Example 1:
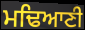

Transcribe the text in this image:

ਮਢਿਆਣੀ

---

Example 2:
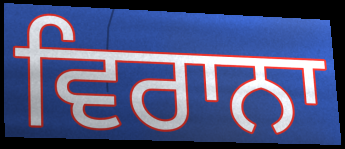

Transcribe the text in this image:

ਵਿਰਾਨਾ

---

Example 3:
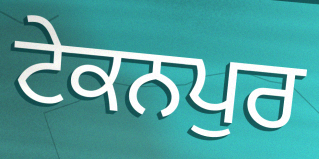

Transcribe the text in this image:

ਟੇਕਨਪੁਰ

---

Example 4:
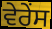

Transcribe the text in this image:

ਵੇਰੇਂਸ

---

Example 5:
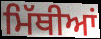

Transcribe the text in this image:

ਮਿੱਥੀਆਂ